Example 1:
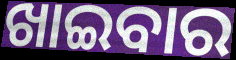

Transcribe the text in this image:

ଖାଇବାର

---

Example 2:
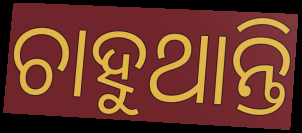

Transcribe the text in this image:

ଚାହୁଥାନ୍ତି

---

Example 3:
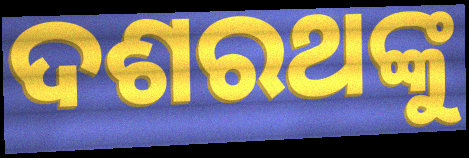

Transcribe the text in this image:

ଦଶରଥଙ୍କୁ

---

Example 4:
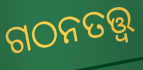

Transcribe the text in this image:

ଗଠନତତ୍ତ୍ୱ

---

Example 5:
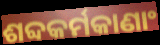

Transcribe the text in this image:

ଶବ୍ଦକର୍ମକାଣାଂ